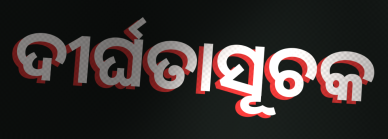
ଦୀର୍ଘତାସୂଚକ